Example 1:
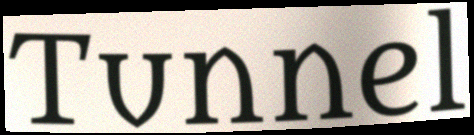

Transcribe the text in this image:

Tunnel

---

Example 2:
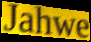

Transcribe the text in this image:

Jahwe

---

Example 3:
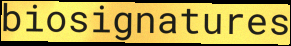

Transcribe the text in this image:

biosignatures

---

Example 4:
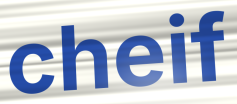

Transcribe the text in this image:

cheif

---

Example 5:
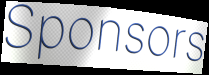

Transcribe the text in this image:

Sponsors